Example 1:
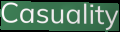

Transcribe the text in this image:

Casuality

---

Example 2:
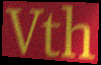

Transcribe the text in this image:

Vth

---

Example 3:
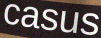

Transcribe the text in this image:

casus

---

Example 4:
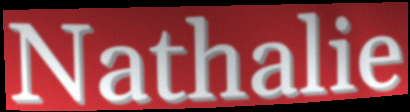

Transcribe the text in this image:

Nathalie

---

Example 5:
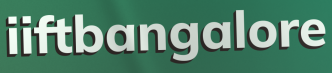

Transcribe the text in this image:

iiftbangalore